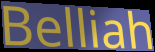
Belliah